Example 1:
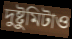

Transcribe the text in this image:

দুষ্টুমিটাও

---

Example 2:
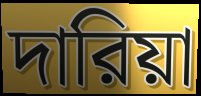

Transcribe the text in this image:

দারিয়া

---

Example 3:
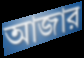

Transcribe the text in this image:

আজার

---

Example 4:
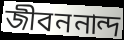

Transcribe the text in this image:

জীবননান্দ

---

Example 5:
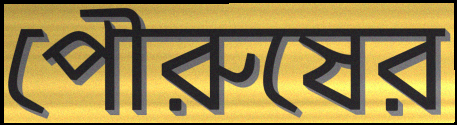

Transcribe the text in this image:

পৌরুষের